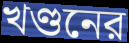
খণ্ডনের